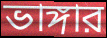
ভাঙ্গার